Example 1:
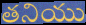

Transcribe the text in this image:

తనియు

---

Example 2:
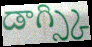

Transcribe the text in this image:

డాగ్స్కి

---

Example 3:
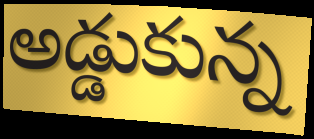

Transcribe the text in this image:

అడ్డుకున్న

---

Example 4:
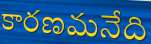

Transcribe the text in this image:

కారణమనేది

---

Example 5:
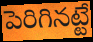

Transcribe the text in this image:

పెరిగినట్టే